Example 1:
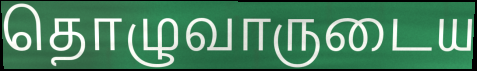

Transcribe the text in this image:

தொழுவாருடைய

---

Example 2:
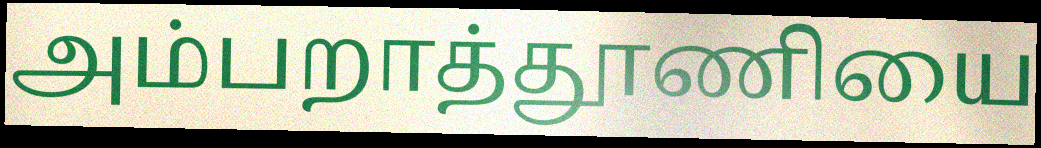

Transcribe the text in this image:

அம்பறாத்தூணியை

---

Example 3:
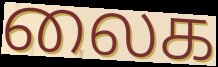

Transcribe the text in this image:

லைக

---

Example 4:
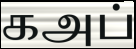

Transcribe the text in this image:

கஅப்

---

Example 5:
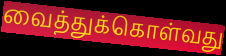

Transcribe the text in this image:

வைத்துக்கொள்வது